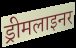
ड्रीमलाइनर